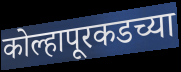
कोल्हापूरकडच्या